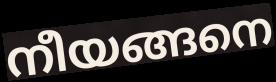
നീയങ്ങനെ